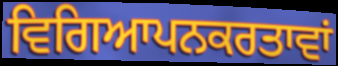
ਵਿਗਿਆਪਨਕਰਤਾਵਾਂ